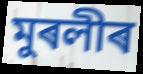
মুৰলীৰ